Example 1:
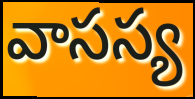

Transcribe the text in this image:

వాసస్య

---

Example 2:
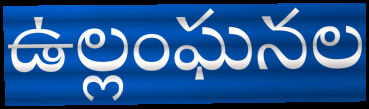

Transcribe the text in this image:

ఉల్లంఘనల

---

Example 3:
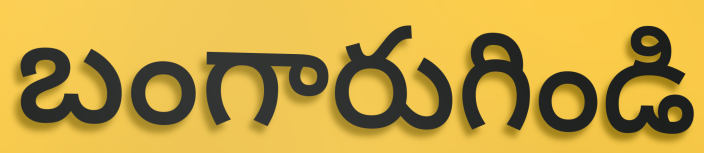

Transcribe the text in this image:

బంగారుగిండి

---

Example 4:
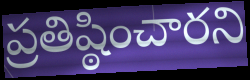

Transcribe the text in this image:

ప్రతిష్ఠించారని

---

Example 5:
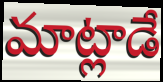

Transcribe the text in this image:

మాట్లాడే